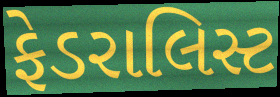
ફેડરાલિસ્ટ